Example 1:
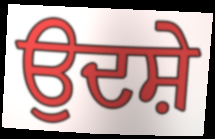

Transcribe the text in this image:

ਉਦਸ਼ੇ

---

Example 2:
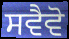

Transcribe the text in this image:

ਸਵੈਵੋ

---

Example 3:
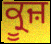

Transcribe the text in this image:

ਕ੍ਰੂਜ਼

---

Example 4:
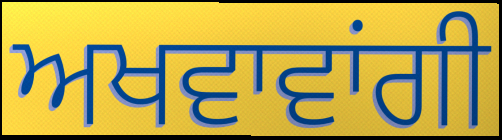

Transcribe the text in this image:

ਅਖਵਾਵਾਂਗੀ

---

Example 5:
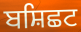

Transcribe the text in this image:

ਬਸ਼ਿਛਟ